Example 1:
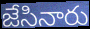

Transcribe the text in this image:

జేసినారు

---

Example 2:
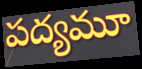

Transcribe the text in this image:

పద్యమూ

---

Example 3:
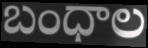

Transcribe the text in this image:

బంధాల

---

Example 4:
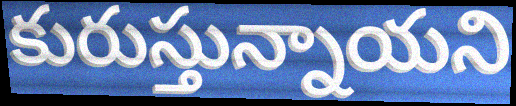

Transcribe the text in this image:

కురుస్తున్నాయని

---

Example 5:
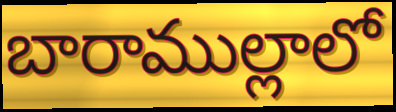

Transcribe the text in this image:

బారాముల్లాలో